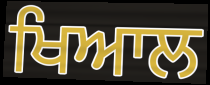
ਖਿਆਲ